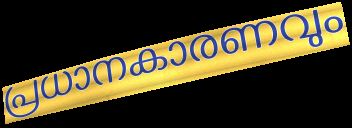
പ്രധാനകാരണവും